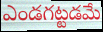
ఎండగట్టడమే